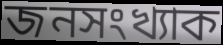
জনসংখ্যাক